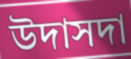
উদাসদা